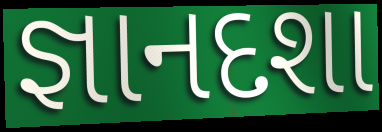
જ્ઞાનદશા